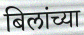
बिलांच्या